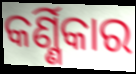
କର୍ଣ୍ଣିକାର